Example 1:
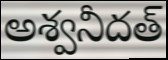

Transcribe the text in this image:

అశ్వనీదత్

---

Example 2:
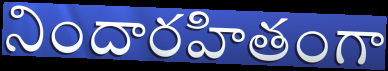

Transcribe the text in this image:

నిందారహితంగా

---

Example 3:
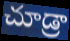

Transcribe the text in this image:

చూడ్రా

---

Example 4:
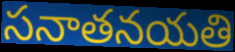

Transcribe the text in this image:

సనాతనయతి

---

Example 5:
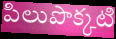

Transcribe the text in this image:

పిలుపొక్కటి